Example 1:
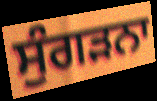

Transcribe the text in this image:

ਸੁੰਗੜਨਾ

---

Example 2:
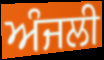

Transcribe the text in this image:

ਅੰਜਲੀ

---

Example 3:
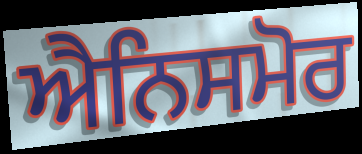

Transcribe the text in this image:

ਐਨਿਸਮੋਰ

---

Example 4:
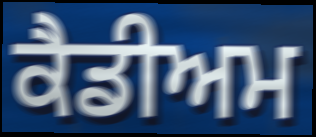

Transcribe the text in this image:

ਕੈਡੀਅਮ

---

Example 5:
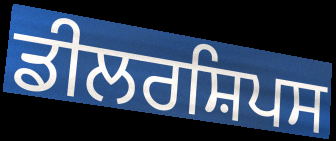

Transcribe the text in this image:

ਡੀਲਰਸ਼ਿਪਸ